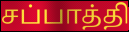
சப்பாத்தி